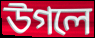
উগলে